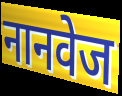
नानवेज